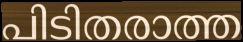
പിടിതരാത്ത